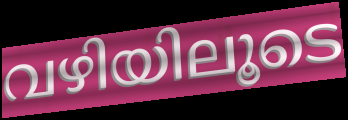
വഴിയിലൂടെ